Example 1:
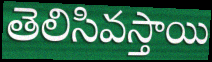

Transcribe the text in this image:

తెలిసివస్తాయి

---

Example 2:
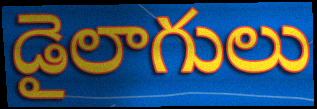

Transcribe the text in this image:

డైలాగులు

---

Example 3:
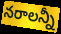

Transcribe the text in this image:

నరాలన్నీ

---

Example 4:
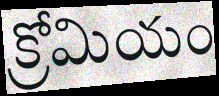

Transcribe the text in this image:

క్రోమియం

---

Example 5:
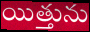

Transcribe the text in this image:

యిత్తును